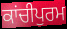
ਕਾਂਚੀਪੁਰਮ